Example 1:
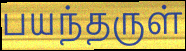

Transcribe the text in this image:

பயந்தருள்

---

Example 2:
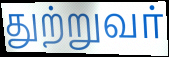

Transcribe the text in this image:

துற்றுவர்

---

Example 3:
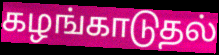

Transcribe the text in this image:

கழங்காடுதல்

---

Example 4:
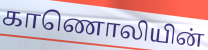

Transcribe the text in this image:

காணொலியின்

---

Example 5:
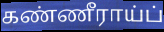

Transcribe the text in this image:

கண்ணீராய்ப்